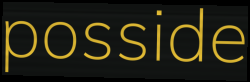
posside